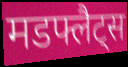
मडफ्लैट्स